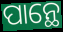
ପାନ୍ଥେ